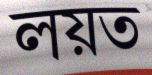
লয়ত